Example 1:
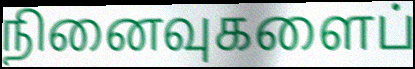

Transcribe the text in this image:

நினைவுகளைப்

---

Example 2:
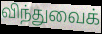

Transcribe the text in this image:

விந்துவைக்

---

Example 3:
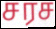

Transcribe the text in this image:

சரச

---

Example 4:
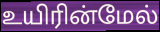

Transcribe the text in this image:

உயிரின்மேல்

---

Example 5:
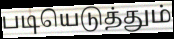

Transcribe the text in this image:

படியெடுத்தும்